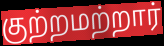
குற்றமற்றார்